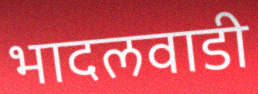
भादलवाडी